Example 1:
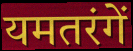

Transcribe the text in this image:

यमतरंगें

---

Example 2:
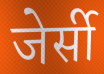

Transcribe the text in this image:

जेर्सी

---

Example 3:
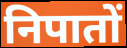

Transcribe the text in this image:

निपातों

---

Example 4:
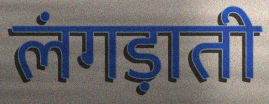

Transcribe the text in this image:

लंगड़ाती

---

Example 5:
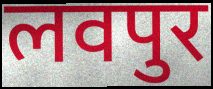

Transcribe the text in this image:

लवपुर